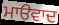
ਮਾੳਵਾਦ